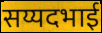
सय्यदभाई